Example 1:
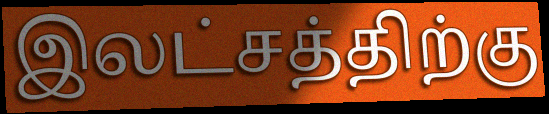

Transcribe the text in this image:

இலட்சத்திற்கு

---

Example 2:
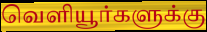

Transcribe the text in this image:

வெளியூர்களுக்கு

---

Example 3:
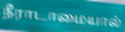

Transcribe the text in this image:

நீராடாமையால்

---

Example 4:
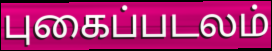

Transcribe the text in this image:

புகைப்படலம்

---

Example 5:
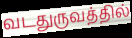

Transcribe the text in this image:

வடதுருவத்தில்